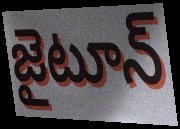
జైటూన్